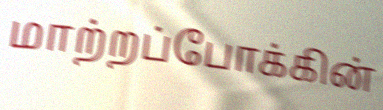
மாற்றப்போக்கின்